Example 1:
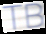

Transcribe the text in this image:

TB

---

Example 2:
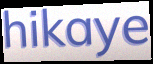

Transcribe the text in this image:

hikaye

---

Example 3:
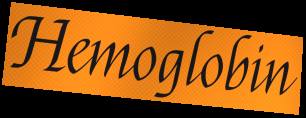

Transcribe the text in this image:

Hemoglobin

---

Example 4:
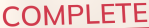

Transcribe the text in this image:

COMPLETE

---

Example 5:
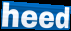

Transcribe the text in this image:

heed